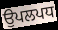
ਉਪਲਪਧ